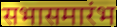
सभासमारंभ